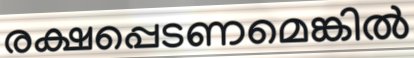
രക്ഷപ്പെടണമെങ്കിൽ